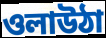
ওলাউঠা